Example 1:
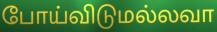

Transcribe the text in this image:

போய்விடுமல்லவா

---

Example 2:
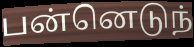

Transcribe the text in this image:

பன்னெடுந்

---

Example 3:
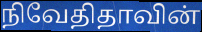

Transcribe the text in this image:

நிவேதிதாவின்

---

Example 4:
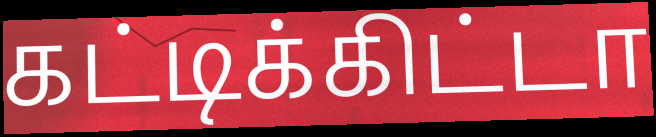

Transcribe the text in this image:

கட்டிக்கிட்டா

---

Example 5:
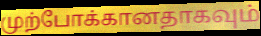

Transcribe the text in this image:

முற்போக்கானதாகவும்